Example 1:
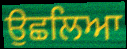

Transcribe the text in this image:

ਉਛਲਿਆ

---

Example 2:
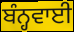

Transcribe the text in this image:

ਬੰਨ੍ਹਵਾਈ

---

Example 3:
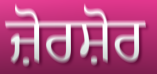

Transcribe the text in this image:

ਜ਼ੋਰਸ਼ੋਰ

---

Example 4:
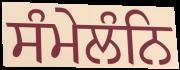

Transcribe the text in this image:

ਸੰਮੇਲੰਨਿ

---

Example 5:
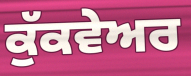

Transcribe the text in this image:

ਕੁੱਕਵੇਅਰ